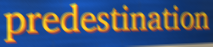
predestination